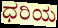
ಧರಿಯ